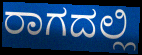
ರಾಗದಲ್ಲಿ